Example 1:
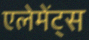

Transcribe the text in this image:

एलेमेंट्स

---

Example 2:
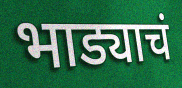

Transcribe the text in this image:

भाड्याचं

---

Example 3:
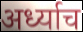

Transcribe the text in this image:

अर्ध्याच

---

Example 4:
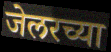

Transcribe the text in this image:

जेलरच्या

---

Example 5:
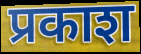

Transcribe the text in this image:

प्रकाश